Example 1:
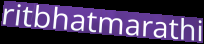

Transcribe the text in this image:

ritbhatmarathi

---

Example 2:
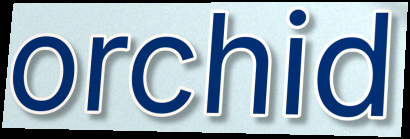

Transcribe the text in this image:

orchid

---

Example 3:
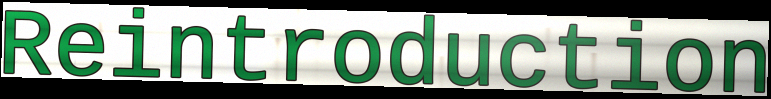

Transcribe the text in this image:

Reintroduction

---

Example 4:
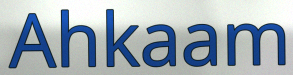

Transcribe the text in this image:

Ahkaam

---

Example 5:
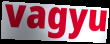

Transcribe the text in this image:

vagyu